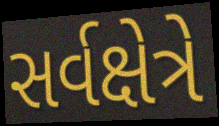
સર્વક્ષેત્રે